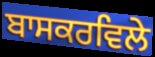
ਬਾਸਕਰਵਿਲੇ